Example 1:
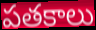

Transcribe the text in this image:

పతకాలు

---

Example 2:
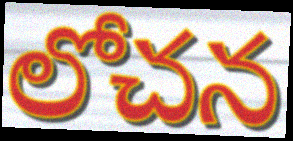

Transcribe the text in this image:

లోచన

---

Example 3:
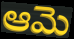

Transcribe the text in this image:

ఆమె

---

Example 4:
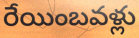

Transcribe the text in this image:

రేయింబవళ్లు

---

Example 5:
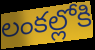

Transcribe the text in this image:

లంకల్లోకి